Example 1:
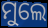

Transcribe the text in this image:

ମୁଲେ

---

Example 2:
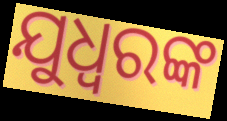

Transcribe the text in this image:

ଯୁଧ୍ଵରଙ୍କ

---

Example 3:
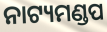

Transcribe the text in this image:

ନାଟ୍ୟମଣ୍ଡପ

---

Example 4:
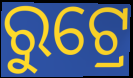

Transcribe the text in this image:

ରୁଟ୍ରେ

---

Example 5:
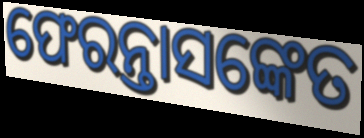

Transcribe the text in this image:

ଫେରନ୍ତାସଙ୍କେତ